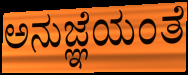
ಅನುಜ್ಞೆಯಂತೆ